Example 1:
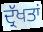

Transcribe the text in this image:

ਦ੍ਰੱਖਤਾਂ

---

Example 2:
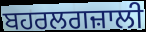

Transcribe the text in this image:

ਬਹਰਲਗਜ਼ਾਲੀ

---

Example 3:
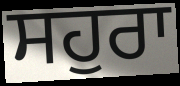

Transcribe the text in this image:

ਸਹੁਰਾ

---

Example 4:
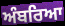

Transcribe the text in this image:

ਅੰਬਰਿਆ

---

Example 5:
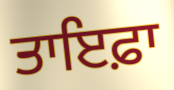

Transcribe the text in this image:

ਤਾਇਫ਼ਾ